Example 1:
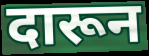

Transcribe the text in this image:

दारून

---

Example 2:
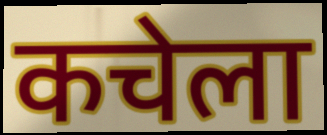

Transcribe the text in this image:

कचेला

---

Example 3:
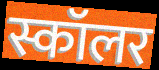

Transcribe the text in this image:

स्कॉलर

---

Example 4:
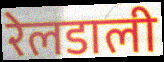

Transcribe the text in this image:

रेलडाली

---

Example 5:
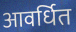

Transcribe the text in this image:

आवर्धित